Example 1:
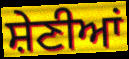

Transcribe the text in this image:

ਸ਼ੇਣੀਆਂ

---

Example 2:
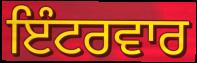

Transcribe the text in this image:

ਇੰਟਰਵਾਰ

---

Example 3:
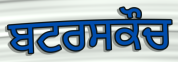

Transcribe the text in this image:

ਬਟਰਸਕੌਚ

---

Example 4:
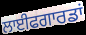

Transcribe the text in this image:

ਲਾਈਫਗਾਰਡਾਂ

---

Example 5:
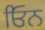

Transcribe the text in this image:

ਓਿਨ